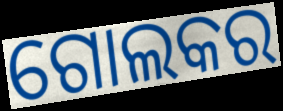
ଗୋଲକର